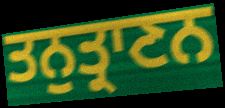
ਤਨੁਤ੍ਰਾਣਨ